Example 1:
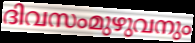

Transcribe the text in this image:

ദിവസംമുഴുവനും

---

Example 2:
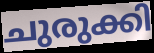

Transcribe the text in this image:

ചുരുക്കി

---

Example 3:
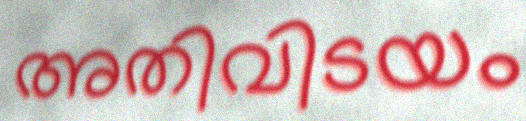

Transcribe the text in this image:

അതിവിടയം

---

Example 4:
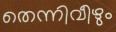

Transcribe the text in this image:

തെന്നിവീഴും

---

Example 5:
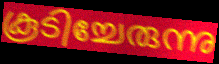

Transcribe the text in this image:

കൂടിച്ചേരുന്നു